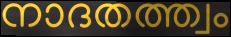
നാദതത്ത്വം